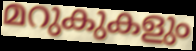
മറുകുകളും